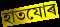
হাতযোৰ